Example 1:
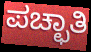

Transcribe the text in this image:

ಪಚ್ಛಾತಿ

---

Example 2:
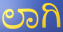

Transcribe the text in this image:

ಲಾಗಿ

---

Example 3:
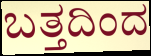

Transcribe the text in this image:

ಬತ್ತದಿಂದ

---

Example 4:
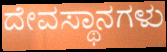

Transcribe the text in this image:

ದೇವಸ್ಥಾನಗಳು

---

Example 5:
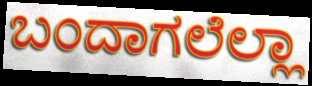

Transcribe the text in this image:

ಬಂದಾಗಲೆಲ್ಲಾ